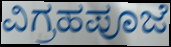
ವಿಗ್ರಹಪೂಜೆ